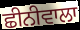
ਛੀਨੀਵਾਲਾ